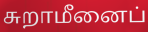
சுறாமீனைப்